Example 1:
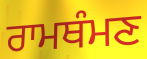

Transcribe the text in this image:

ਰਾਮਥੰਮਣ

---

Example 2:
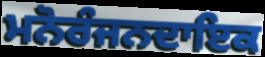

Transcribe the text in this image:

ਮਨੋਰੰਜਨਦਾਇਕ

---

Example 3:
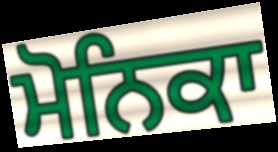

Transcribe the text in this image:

ਮੋਨਿਕਾ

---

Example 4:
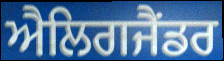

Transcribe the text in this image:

ਐਲਿਗਜੈਂਡਰ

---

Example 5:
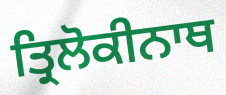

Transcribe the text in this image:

ਤ੍ਰਿਲੋਕੀਨਾਥ